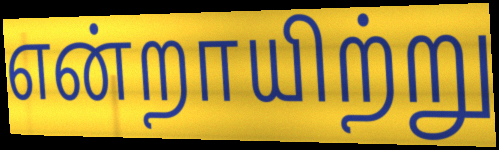
என்றாயிற்று